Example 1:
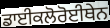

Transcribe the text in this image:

ਡਾਈਕਲੋਰੋਈਥੇਨ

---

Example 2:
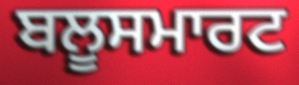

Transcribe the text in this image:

ਬਲੂਸਮਾਰਟ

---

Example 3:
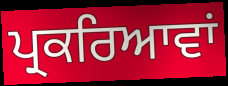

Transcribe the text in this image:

ਪ੍ਰਕਰਿਆਵਾਂ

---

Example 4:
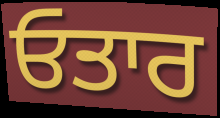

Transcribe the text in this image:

ਓਤਾਰ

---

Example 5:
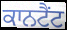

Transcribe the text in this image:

ਕਾਨਟੈਂਟ